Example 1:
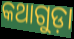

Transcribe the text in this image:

କଥାଗୁଡ଼ା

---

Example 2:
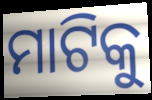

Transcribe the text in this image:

ମାଟିକୁ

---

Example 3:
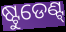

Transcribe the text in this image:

ଷ୍ଟୁଡେଣ୍ଟ୍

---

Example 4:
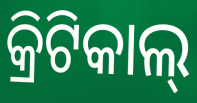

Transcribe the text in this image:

କ୍ରିଟିକାଲ୍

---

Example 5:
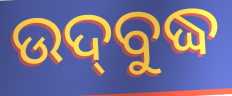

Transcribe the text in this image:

ଉଦ୍‌ବୁଦ୍ଧ